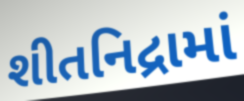
શીતનિદ્રામાં